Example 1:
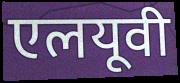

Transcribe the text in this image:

एलयूवी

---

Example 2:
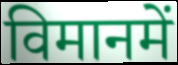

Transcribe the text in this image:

विमानमें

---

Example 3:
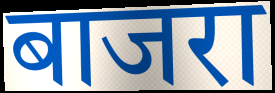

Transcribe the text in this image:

बाजरा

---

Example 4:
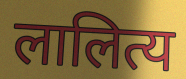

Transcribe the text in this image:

लालित्य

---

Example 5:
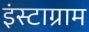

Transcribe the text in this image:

इंस्टाग्राम